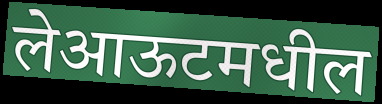
लेआऊटमधील